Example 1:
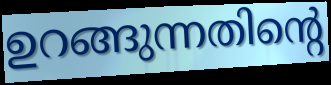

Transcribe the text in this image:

ഉറങ്ങുന്നതിന്റെ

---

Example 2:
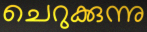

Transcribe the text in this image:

ചെറുക്കുന്നു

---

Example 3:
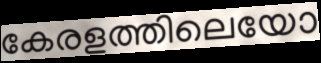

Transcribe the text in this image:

കേരളത്തിലെയോ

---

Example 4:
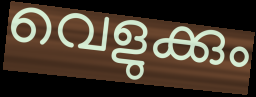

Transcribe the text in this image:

വെളുക്കും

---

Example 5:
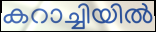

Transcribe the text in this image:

കറാച്ചിയിൽ